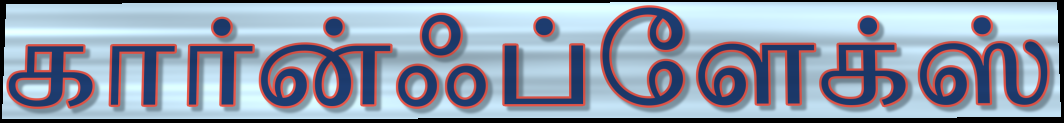
கார்ன்ஃப்ளேக்ஸ்